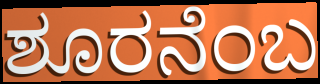
ಶೂರನೆಂಬ